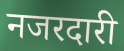
नजरदारी